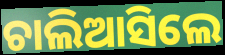
ଚାଲିଆସିଲେ